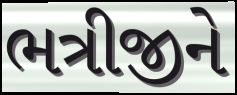
ભત્રીજીને